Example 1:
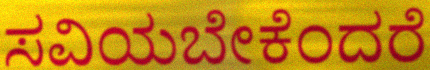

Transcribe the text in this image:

ಸವಿಯಬೇಕೆಂದರೆ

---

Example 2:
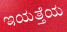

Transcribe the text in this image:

ಇಯತ್ತೆಯ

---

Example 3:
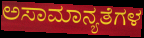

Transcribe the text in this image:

ಅಸಾಮಾನ್ಯತೆಗಳ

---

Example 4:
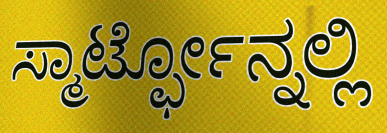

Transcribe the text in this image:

ಸ್ಮಾರ್ಟ್ಫೋನ್ನಲ್ಲಿ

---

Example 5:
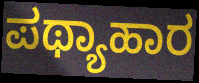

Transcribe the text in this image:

ಪಥ್ಯಾಹಾರ